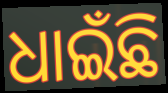
ଧାଇଁଛି